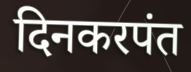
दिनकरपंत